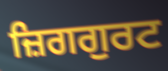
ਜ਼ਿਗਗੁਰਟ